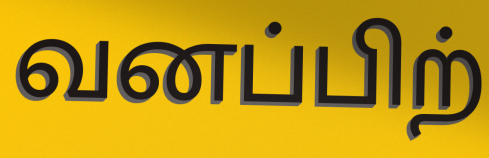
வனப்பிற்